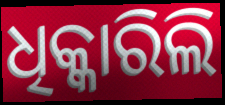
ଧିକ୍କାରିଲି